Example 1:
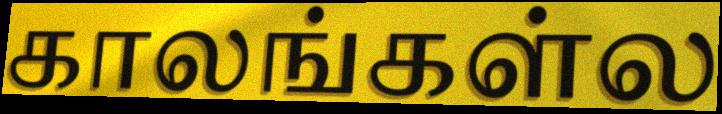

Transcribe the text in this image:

காலங்கள்ல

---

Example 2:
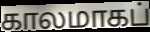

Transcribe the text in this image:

காலமாகப்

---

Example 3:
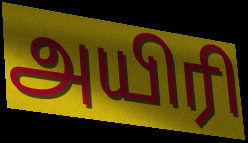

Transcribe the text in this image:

அயிரி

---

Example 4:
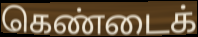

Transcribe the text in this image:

கெண்டைக்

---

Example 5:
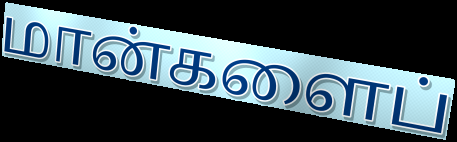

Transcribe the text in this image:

மான்களைப்